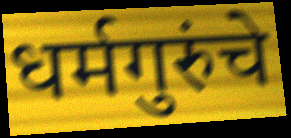
धर्मगुरुंचे